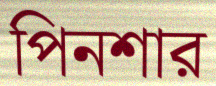
পিনশার